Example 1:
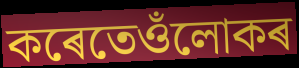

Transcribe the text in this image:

কৰেতেওঁলোকৰ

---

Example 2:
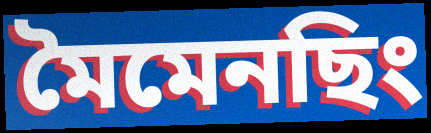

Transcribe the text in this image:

মৈমেনছিং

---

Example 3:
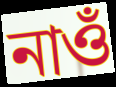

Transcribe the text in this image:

নাওঁ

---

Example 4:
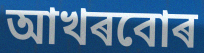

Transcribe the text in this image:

আখৰবোৰ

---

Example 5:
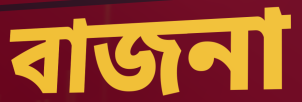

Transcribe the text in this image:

বাজনা